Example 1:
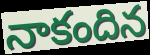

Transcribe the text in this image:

నాకందిన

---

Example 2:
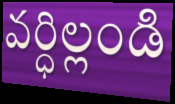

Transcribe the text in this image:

వర్ధిల్లండి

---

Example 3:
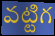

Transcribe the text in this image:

వట్టిగ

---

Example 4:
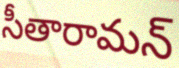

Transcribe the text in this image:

సీతారామన్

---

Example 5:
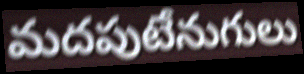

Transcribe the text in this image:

మదపుటేనుగులు